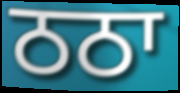
ਠਠਾ